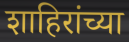
शाहिरांच्या